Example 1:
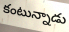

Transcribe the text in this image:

కంటున్నాడు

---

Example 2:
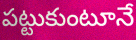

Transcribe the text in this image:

పట్టుకుంటూనే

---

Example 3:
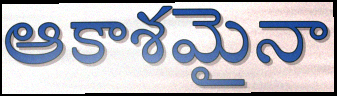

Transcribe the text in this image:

ఆకాశమైనా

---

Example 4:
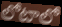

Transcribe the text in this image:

లోటాలో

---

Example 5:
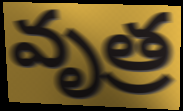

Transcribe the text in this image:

వృత్ర